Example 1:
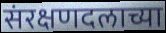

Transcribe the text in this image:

संरक्षणदलाच्या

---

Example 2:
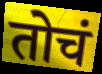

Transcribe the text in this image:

तोचं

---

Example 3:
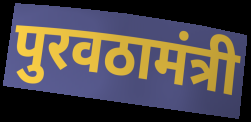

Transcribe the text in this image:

पुरवठामंत्री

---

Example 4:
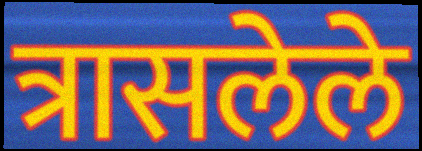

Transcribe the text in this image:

त्रासलेले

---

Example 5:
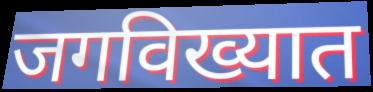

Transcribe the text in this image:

जगविख्यात